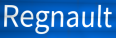
Regnault